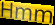
Hmm